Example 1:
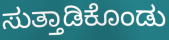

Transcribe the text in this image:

ಸುತ್ತಾಡಿಕೊಂಡು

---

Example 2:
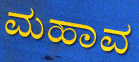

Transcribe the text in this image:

ಮಹಾವ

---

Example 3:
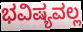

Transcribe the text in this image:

ಭವಿಷ್ಯವಲ್ಲ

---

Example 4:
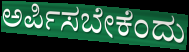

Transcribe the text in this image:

ಅರ್ಪಿಸಬೇಕೆಂದು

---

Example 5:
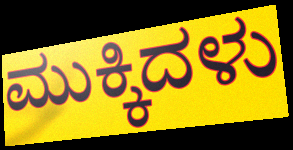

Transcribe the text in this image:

ಮುಕ್ಕಿದಳು